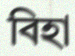
বিহা